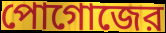
পোগোজের